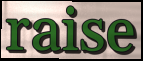
raise